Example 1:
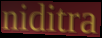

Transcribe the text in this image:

niditra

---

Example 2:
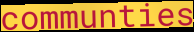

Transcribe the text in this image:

communties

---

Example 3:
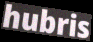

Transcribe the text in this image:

hubris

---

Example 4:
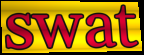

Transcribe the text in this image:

swat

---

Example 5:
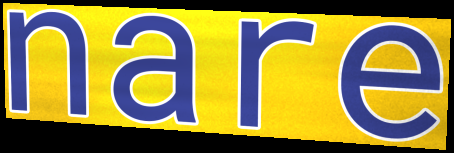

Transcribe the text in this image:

nare